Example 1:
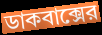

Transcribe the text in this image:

ডাকবাক্সের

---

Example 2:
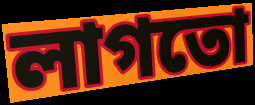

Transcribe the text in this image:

লাগতো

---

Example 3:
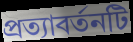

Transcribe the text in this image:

প্রত্যাবর্তনটি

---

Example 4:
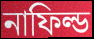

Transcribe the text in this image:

নাফিল্ড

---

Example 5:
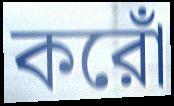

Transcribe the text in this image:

করোঁ